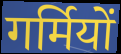
गर्मियों